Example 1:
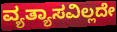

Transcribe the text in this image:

ವ್ಯತ್ಯಾಸವಿಲ್ಲದೇ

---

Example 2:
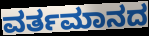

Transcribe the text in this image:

ವರ್ತಮಾನದ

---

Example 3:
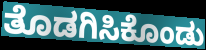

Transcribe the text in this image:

ತೊಡಗಿಸಿಕೊಂಡು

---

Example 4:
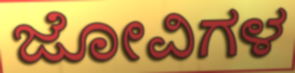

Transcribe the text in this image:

ಜೋವಿಗಳ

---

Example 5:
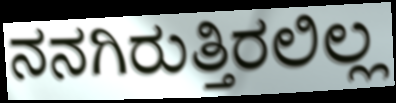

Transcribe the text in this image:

ನನಗಿರುತ್ತಿರಲಿಲ್ಲ